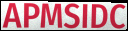
APMSIDC